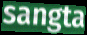
sangta